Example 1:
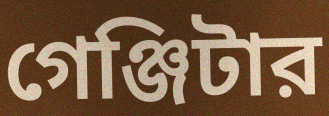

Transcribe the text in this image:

গেঞ্জিটার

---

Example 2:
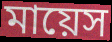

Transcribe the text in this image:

মায়েস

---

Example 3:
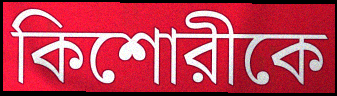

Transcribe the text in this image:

কিশোরীকে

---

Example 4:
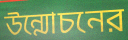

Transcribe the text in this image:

উন্মোচনের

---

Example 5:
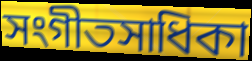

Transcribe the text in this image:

সংগীতসাধিকা